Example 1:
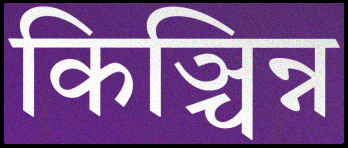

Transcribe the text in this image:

किञ्चिन्न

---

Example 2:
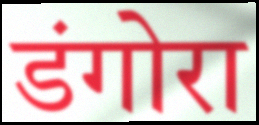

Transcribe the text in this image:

डंगोरा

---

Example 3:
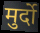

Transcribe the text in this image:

मुर्दो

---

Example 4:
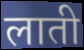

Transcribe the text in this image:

लाती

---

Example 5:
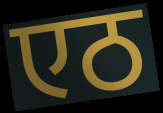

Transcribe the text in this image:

एठ